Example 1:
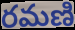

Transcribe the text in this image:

రమణి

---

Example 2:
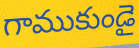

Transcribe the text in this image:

గాముకుండై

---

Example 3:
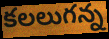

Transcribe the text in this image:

కలలుగన్న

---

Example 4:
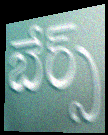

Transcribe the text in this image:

బేర్స్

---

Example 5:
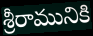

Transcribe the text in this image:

శ్రీరామునికి